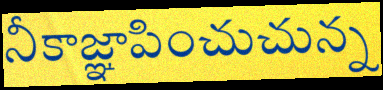
నీకాజ్ఞాపించుచున్న